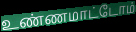
உண்ணமாட்டோம்